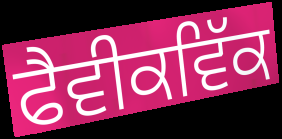
ਫੈਵੀਕਵਿੱਕ